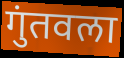
गुंतवला